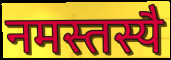
नमस्तस्यै